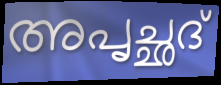
അപൃച്ഛദ്